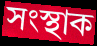
সংস্থাক